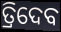
ତ୍ରିଦେବ